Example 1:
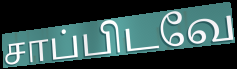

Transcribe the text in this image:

சாப்பிடவே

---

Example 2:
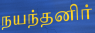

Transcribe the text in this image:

நயந்தனிர்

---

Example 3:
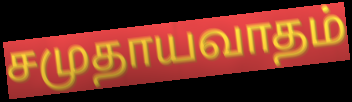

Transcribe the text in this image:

சமுதாயவாதம்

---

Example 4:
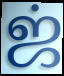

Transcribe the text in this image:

ஜ்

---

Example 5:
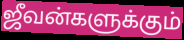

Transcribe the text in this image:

ஜீவன்களுக்கும்